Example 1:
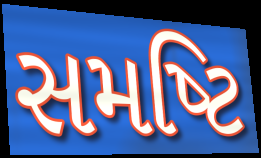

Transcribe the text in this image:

સમષ્‍ટિ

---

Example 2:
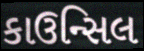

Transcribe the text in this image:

કાઉન્‍સિલ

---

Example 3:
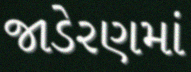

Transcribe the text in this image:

જાડેરણમાં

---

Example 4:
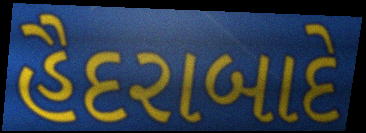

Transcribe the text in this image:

હૈદરાબાદે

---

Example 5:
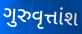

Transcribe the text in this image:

ગુરુવૃત્તાંશ